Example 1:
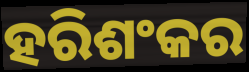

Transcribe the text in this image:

ହରିଶଂକର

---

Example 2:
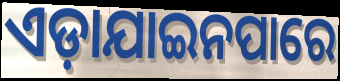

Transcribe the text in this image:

ଏଡ଼ାଯାଇନପାରେ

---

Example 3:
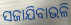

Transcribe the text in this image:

ସଜାଯିବାଭଳି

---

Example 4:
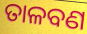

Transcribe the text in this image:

ତାଳବଣ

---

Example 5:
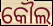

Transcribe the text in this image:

କୌଲ